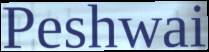
Peshwai